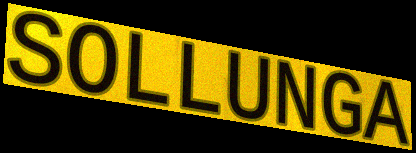
SOLLUNGA